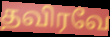
தவிரவே